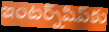
ఇంటర్న్‌షిప్‌కు